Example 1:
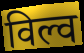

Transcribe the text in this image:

विल्व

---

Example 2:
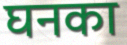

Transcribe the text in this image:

घनका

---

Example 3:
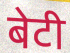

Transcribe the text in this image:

बेटी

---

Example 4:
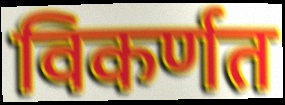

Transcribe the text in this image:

विकर्णत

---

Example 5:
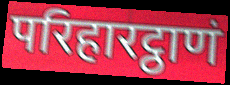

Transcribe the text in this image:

परिहारट्ठाणं